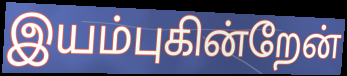
இயம்புகின்றேன்